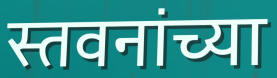
स्तवनांच्या